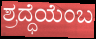
ಶ್ರದ್ಧೆಯೆಂಬ